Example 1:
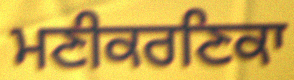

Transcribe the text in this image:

ਮਣੀਕਰਣਿਕਾ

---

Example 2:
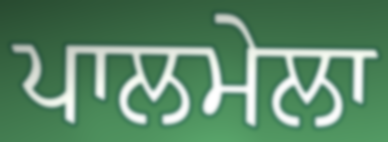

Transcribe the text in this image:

ਪਾਲਮੇਲਾ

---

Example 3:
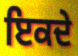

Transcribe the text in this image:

ਇਕਦੇ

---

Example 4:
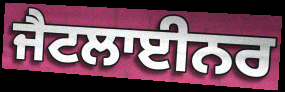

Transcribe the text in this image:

ਜੈਟਲਾਈਨਰ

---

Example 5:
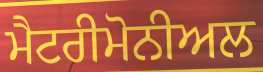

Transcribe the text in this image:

ਮੈਟਰੀਮੋਨੀਅਲ